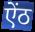
ऐंठ